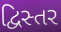
દ્વિસ્તર